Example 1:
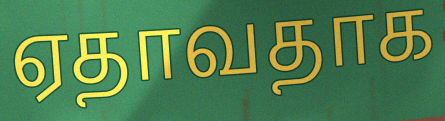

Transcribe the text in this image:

ஏதாவதாக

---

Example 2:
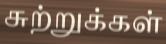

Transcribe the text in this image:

சுற்றுக்கள்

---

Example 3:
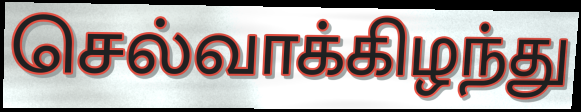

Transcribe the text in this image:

செல்வாக்கிழந்து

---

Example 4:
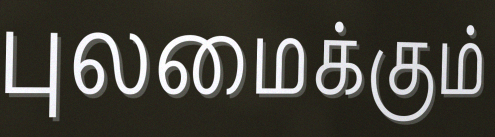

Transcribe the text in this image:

புலமைக்கும்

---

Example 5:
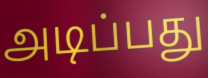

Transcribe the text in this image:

அடிப்பது